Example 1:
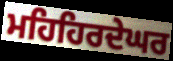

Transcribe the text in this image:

ਮਹਿਹਿਰਦੇਘਰ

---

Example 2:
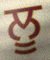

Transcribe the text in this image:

ਲੂ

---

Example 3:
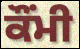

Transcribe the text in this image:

ਕੌਂਮੀ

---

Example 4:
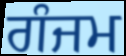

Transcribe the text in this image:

ਗੰਜਮ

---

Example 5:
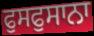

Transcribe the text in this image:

ਫੁਸਫੁਸਾਨਾ